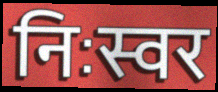
निःस्वर